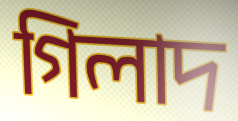
গিলাদ